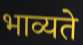
भाव्यते